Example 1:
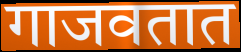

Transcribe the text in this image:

गाजवतात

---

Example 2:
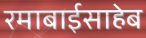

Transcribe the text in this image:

रमाबाईसाहेब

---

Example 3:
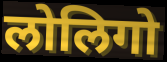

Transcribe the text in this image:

लोलिगो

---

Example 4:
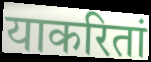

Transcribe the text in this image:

याकरितां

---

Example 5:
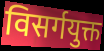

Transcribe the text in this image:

विसर्गयुक्त